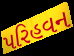
પરિહવન